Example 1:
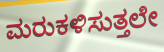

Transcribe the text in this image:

ಮರುಕಳಿಸುತ್ತಲೇ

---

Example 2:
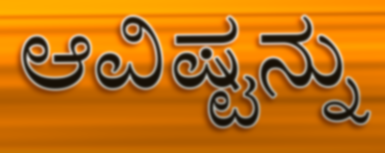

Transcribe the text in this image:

ಆವಿಷ್ಟನ್ನು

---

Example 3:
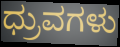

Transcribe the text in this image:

ಧ್ರುವಗಳು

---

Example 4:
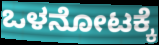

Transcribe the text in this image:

ಒಳನೋಟಕ್ಕೆ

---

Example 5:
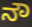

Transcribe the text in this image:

ನೌ